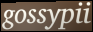
gossypii